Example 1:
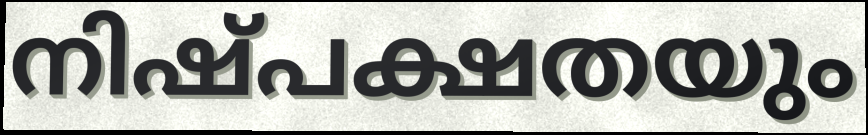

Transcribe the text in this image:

നിഷ്പക്ഷതയും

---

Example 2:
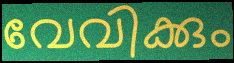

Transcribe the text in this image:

വേവിക്കും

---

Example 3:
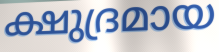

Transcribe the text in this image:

ക്ഷുദ്രമായ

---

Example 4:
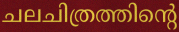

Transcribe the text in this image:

ചലചിത്രത്തിന്റെ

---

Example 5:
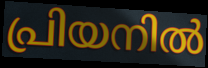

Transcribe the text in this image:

പ്രിയനിൽ